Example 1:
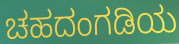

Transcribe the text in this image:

ಚಹದಂಗಡಿಯ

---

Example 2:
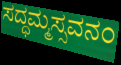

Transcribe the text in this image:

ಸದ್ಧಮ್ಮಸ್ಸವನಂ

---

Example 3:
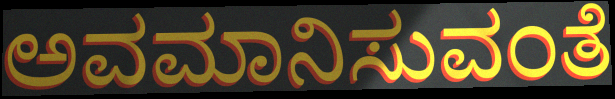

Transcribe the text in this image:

ಅವಮಾನಿಸುವಂತೆ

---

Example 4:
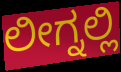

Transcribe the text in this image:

ಲೀಗ್ನಲ್ಲಿ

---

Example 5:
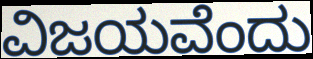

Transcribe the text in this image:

ವಿಜಯವೆಂದು